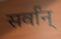
सर्वा॑न्